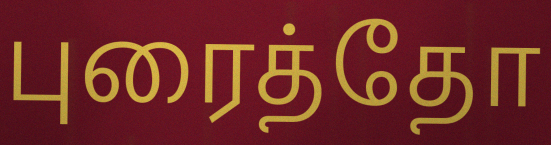
புரைத்தோ